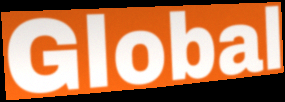
Global